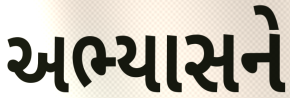
અભ્યાસને